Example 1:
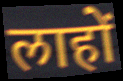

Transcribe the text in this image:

लाहों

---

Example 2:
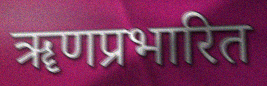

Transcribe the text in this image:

ॠणप्रभारित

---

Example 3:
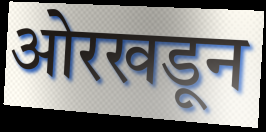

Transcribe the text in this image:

ओरखडून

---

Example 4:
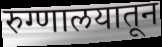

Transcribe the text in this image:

रुग्णालयातून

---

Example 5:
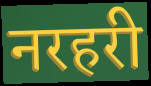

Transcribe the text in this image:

नरहरी